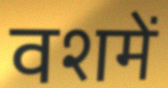
वशमें